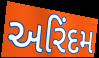
અરિંદમ